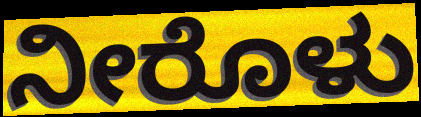
ನೀರೊಳು